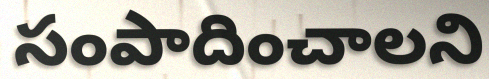
సంపాదించాలని